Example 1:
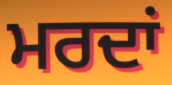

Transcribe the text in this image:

ਮਰਦਾਂ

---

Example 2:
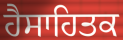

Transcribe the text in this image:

ਹੈਸਾਹਿਤਕ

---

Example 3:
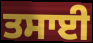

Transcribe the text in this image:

ਤਸਾਈ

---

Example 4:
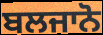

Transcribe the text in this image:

ਬਲਜਾਨੋ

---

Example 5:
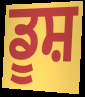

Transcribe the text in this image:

ਡੂਸ਼